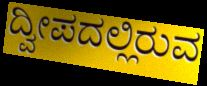
ದ್ವೀಪದಲ್ಲಿರುವ